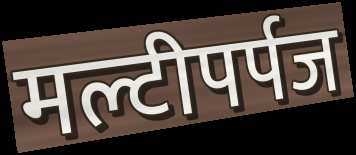
मल्टीपर्पज